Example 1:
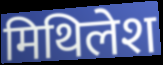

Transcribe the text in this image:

मिथिलेश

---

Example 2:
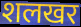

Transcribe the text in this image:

शलखर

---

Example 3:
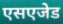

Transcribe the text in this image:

एसएजेड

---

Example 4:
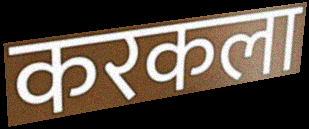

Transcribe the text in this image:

करकला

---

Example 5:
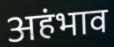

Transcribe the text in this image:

अहंभाव